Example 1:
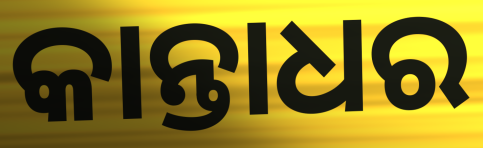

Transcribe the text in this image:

କାନ୍ତାଧର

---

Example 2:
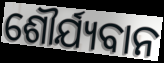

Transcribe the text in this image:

ଶୌର୍ଯ୍ୟବାନ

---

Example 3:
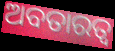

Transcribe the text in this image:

ଅବତାରତ୍ୱ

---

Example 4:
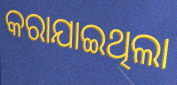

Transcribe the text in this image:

କରାଯାଇଥିଲା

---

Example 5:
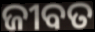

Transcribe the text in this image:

ଜୀବତ